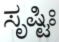
ಸೃಷ್ಟಿಃ